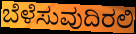
ಬೆಳೆಸುವುದಿರಲಿ